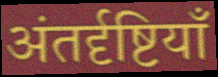
अंतर्दृष्टियाँ